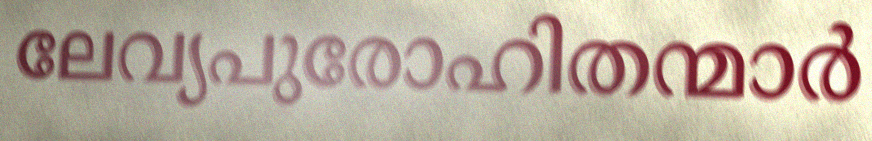
ലേവ്യപുരോഹിതന്മാർ